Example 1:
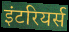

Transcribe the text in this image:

इंटरियर्स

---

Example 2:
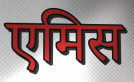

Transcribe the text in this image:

एमिस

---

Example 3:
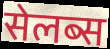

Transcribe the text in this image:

सेलब्स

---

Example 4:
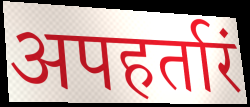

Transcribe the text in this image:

अपहर्तारं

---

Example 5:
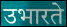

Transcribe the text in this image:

उभारते